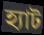
হ্যাট